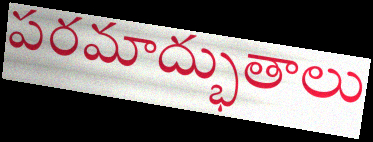
పరమాద్భుతాలు